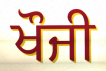
ਖੌਜੀ